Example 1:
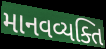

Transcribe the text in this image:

માનવવ્યક્તિ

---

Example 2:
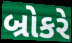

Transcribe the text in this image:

બ્રોકરે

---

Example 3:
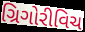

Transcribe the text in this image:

ગ્રિગોરીવિચ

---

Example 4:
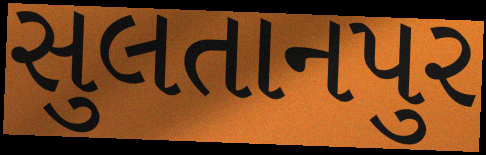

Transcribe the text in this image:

સુલતાનપુર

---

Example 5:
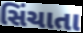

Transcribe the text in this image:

સિંચાતા